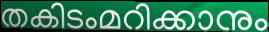
തകിടംമറിക്കാനും